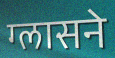
ग्लासने